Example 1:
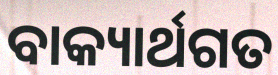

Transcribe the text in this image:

ବାକ୍ୟାର୍ଥଗତ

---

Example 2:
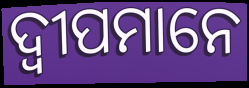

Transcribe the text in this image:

ଦ୍ୱୀପମାନେ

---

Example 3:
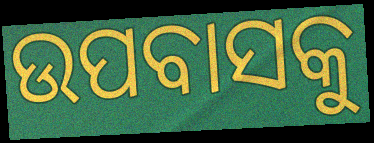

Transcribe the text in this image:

ଉପବାସକୁ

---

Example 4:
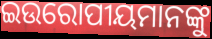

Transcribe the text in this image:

ଇଉରୋପୀୟମାନଙ୍କୁ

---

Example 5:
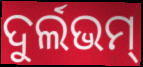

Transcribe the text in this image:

ଦୁର୍ଲଭମ୍